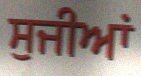
ਸੁਜੀਆਂ